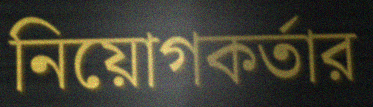
নিয়োগকর্তার